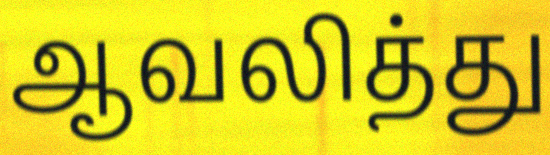
ஆவலித்து